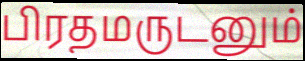
பிரதமருடனும்